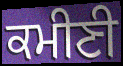
ਕਮੀਣੀ